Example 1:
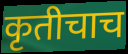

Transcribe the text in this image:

कृतीचाच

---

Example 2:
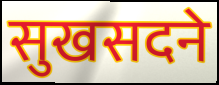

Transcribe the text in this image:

सुखसदने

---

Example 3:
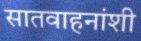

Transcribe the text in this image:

सातवाहनांशी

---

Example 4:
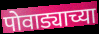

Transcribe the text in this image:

पोवाड्याच्या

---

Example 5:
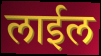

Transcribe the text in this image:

लाईल